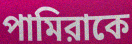
পামিরাকে